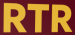
RTR